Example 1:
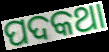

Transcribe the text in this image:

ପଦକଥା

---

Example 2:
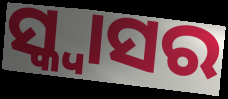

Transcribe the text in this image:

ସ୍କ୍ବାସର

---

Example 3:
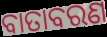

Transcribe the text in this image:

ବାତାବରଣ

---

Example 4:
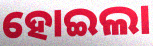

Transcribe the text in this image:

ହୋଇଲା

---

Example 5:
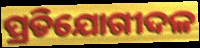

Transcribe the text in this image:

ପ୍ରତିଯୋଗୀଦଳ